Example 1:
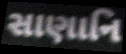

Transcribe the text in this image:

સાણાનિ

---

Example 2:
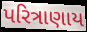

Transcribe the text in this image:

પરિત્રાણાય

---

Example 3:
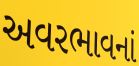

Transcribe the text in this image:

અવરભાવનાં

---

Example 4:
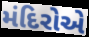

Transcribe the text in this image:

મંદિરોએ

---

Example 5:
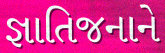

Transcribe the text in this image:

જ્ઞાતિજનાને